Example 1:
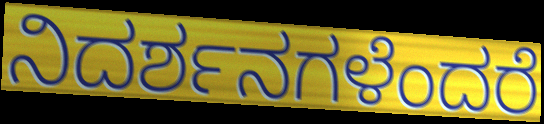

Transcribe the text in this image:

ನಿದರ್ಶನಗಳೆಂದರೆ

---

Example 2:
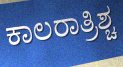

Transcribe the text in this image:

ಕಾಲರಾತ್ರಿಶ್ಚ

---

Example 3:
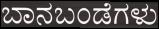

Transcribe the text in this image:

ಬಾನಬಂಡೆಗಳು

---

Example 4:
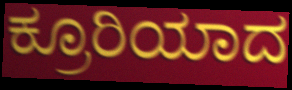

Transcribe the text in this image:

ಕ್ರೂರಿಯಾದ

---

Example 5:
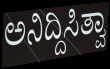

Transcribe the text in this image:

ಅನಿದ್ದಿಸಿತ್ವಾ